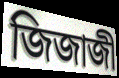
জিজাজী